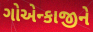
ગોએન્કાજીને